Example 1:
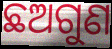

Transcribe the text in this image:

ଛଅଗୁଣ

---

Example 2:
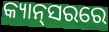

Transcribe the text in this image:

କ୍ୟାନ୍‌ସରରେ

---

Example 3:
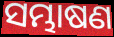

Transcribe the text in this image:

ସମ୍ଭାଷଣ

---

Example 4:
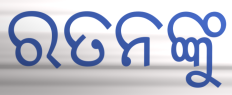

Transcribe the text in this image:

ରତନଙ୍କୁ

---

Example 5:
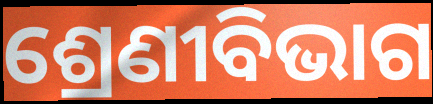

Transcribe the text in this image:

ଶ୍ରେଣୀବିଭାଗ